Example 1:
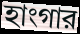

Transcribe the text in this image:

হাংগার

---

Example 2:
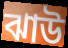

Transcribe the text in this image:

ঝাউ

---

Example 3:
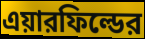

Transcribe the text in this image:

এয়ারফিল্ডের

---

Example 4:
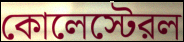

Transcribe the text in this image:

কোলেস্টেরল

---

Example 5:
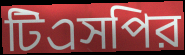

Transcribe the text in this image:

টিএসপির